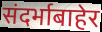
संदर्भाबाहेर